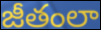
జీతంలా